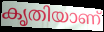
കൃതിയാണ്